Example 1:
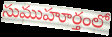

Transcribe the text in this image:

సుముహూర్తంలో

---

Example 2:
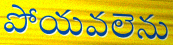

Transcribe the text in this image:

పోయవలెను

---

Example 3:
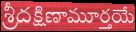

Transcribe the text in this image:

శ్రీదక్షిణామూర్తయే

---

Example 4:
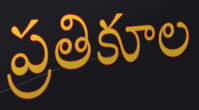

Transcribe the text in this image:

ప్రతికూల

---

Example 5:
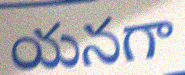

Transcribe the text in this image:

యనగా